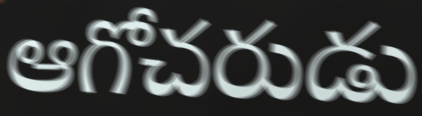
ఆగోచరుడు